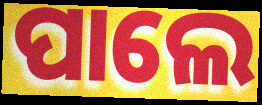
ପାଲେ